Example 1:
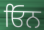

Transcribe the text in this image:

ਓਿਨ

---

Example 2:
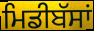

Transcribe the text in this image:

ਮਿਡੀਬੱਸਾਂ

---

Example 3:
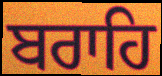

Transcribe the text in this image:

ਬਰਾਹਿ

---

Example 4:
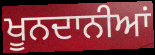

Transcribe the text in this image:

ਖੂਨਦਾਨੀਆਂ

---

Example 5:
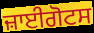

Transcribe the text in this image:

ਜ਼ਾਈਗੋਟਸ